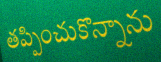
తప్పించుకొన్నాను